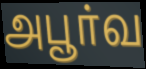
அபூர்வ